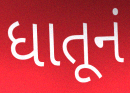
ધાતૂનં